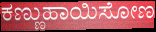
ಕಣ್ಣುಹಾಯಿಸೋಣ